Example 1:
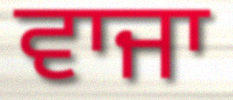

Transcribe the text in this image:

ਵਾਜਾ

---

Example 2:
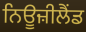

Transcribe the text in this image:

ਨਿਊਜ਼ੀਲੈਂਡ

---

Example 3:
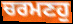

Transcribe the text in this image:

ਚਰਮਣਹੁ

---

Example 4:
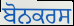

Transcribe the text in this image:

ਬੋਨਕਰਸ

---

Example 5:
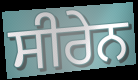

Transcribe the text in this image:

ਸੀਰੇਨ